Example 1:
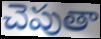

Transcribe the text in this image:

చెపుతా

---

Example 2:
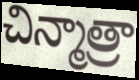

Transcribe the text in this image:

చిన్మాత్రా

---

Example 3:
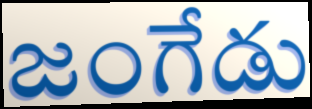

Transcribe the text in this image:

జంగేడు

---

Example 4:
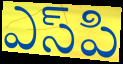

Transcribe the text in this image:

ఎస్‌పి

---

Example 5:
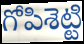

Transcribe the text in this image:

గోపిశెట్టి